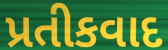
પ્રતીકવાદ